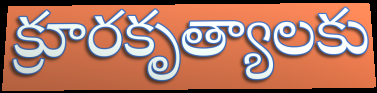
క్రూరకృత్యాలకు